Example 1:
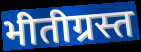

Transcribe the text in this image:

भीतीग्रस्त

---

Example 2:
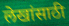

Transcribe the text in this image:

लेखांसाठी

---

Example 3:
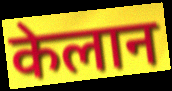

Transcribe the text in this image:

केलान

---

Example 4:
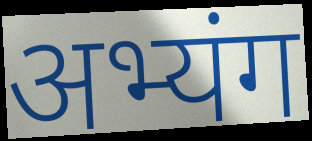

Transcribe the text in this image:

अभ्यंग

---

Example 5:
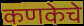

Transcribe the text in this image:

कणकेचे